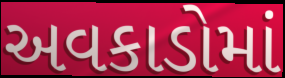
અવકાડોમાં